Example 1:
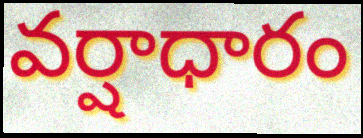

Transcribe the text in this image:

వర్షాధారం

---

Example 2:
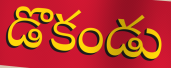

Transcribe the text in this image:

డొకండు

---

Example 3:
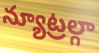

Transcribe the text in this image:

న్యూట్రల్గా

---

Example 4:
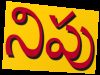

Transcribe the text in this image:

నిపు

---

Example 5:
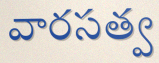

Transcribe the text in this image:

వారసత్వ